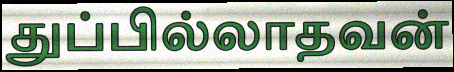
துப்பில்லாதவன்